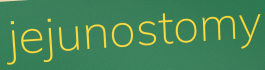
jejunostomy